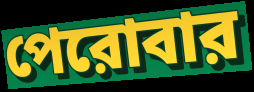
পেরোবার